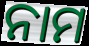
ନାମ